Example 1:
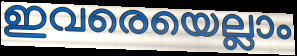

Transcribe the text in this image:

ഇവരെയെല്ലാം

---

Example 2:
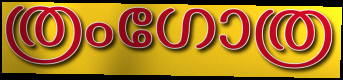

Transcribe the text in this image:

ത്രംഗോത്ര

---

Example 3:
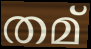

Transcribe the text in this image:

തമ്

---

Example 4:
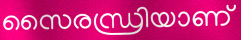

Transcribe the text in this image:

സൈരന്ധ്രിയാണ്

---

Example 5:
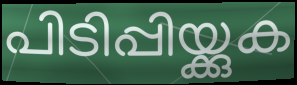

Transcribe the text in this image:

പിടിപ്പിയ്ക്കുക